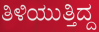
ತಿಳಿಯುತ್ತಿದ್ದ